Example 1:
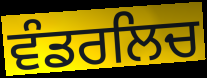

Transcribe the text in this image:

ਵੰਡਰਲਿਚ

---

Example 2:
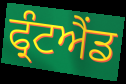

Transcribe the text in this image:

ਫ੍ਰੰਟਐਂਡ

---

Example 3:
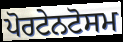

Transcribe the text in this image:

ਪੋਰਟੇਨਟੋਸਮ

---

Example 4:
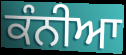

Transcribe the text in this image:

ਕੰਨੀਆ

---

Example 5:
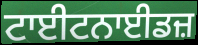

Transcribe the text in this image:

ਟਾਈਟਨਾਈਡਜ਼